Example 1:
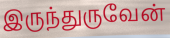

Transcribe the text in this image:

இருந்துருவேன்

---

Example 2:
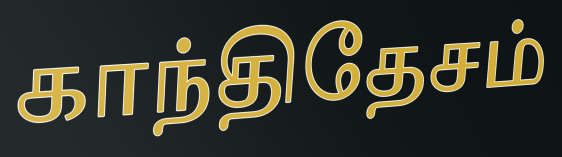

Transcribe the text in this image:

காந்திதேசம்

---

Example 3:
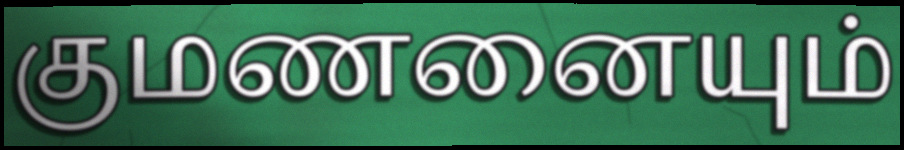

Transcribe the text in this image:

குமணனையும்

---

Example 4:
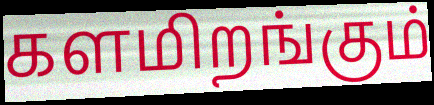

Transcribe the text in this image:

களமிறங்கும்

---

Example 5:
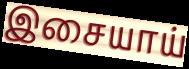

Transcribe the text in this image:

இசையாய்